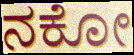
ನಕೋ